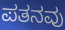
ಪತನವು